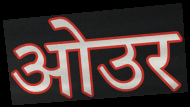
ओउर